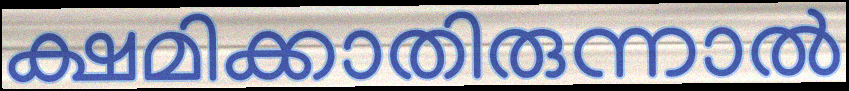
ക്ഷമിക്കാതിരുന്നാൽ